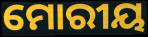
ମୋରୀୟ